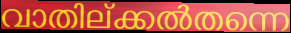
വാതില്ക്കൽതന്നെ